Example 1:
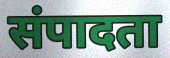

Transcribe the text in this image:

संपादता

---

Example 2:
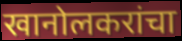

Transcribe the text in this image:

खानोलकरांचा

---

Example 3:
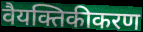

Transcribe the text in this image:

वैयक्तिकीकरण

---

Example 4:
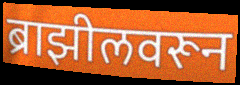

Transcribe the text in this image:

ब्राझीलवरून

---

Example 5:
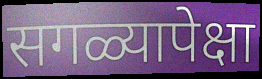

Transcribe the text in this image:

सगळ्यापेक्षा